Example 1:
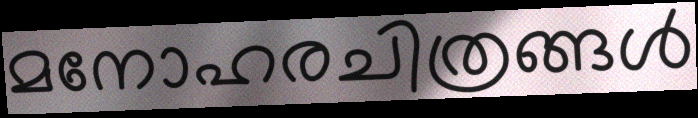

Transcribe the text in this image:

മനോഹരചിത്രങ്ങൾ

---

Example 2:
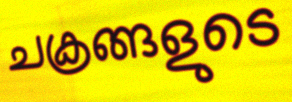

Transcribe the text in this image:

ചക്രങ്ങളുടെ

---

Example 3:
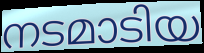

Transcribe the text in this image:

നടമാടിയ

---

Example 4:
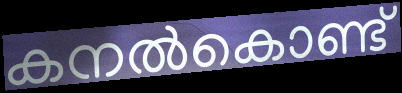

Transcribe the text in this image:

കനൽകൊണ്ട്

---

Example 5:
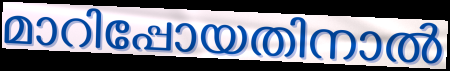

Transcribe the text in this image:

മാറിപ്പോയതിനാൽ